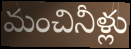
మంచినీళ్లు